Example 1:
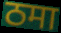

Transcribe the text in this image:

ठमा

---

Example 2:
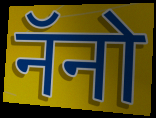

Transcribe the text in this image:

नॅनो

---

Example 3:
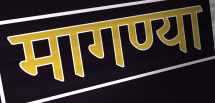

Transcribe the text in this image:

मागण्या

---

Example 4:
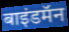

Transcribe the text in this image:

बाइंडमॅन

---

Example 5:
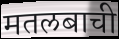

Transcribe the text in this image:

मतलबाची